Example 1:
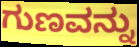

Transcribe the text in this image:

ಗುಣವನ್ನು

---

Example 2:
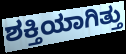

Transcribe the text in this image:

ಶಕ್ತಿಯಾಗಿತ್ತು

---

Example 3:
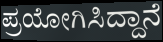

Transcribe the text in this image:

ಪ್ರಯೋಗಿಸಿದ್ದಾನೆ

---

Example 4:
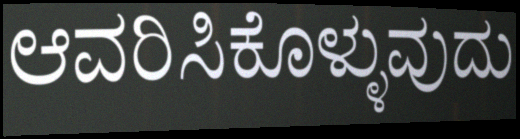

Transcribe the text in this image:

ಆವರಿಸಿಕೊಳ್ಳುವುದು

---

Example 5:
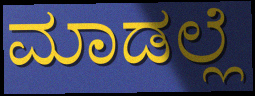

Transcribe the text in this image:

ಮಾಡಲ್ಲೆ